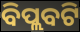
ବିପ୍ଲବଟି